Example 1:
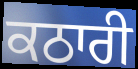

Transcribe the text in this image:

ਕਠਾਰੀ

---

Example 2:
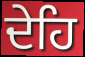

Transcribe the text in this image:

ਦੇਹਿ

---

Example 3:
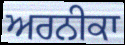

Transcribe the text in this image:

ਅਰਨੀਕਾ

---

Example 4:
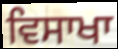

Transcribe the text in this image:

ਵਿਸਾਖਾ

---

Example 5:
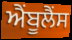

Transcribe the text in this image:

ਐਂਬੂਲੈਂਸ